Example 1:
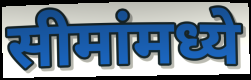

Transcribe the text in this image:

सीमांमध्ये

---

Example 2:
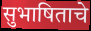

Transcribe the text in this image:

सुभाषिताचे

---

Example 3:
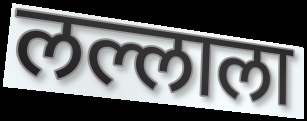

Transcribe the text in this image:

लल्लाला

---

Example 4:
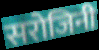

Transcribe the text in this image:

सरोजिनी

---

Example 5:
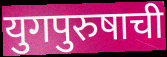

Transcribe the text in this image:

युगपुरुषाची